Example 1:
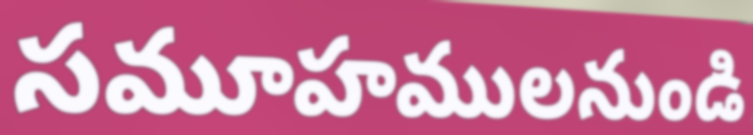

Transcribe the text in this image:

సమూహములనుండి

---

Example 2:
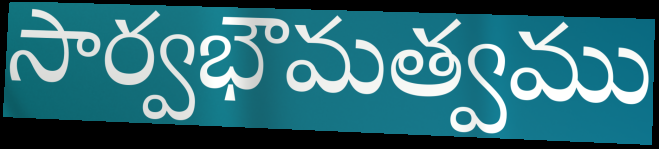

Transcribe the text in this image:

సార్వభౌమత్వము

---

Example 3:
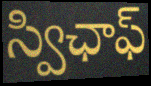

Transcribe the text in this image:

స్విఛాఫ్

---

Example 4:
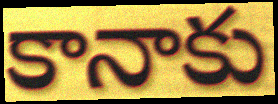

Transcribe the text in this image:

కానాకు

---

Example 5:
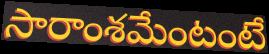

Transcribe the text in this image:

సారాంశమేంటంటే